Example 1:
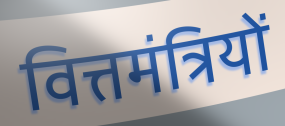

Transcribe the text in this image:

वित्तमंत्रियों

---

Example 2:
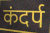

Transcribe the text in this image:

कंदर्प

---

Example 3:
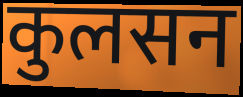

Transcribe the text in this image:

कुलसन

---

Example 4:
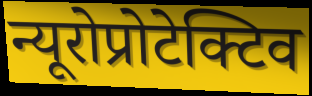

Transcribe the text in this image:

न्यूरोप्रोटेक्टिव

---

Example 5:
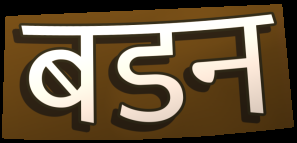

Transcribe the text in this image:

बडन